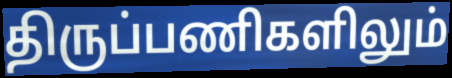
திருப்பணிகளிலும்